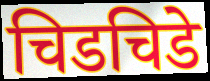
चिडचिडे